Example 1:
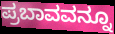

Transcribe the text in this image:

ಪ್ರಬಾವವನ್ನೂ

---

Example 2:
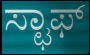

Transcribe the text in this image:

ಸ್ಟಾಫ್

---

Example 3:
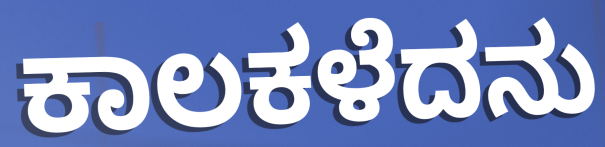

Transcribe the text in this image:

ಕಾಲಕಳೆದನು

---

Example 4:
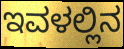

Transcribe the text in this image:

ಇವಳಲ್ಲಿನ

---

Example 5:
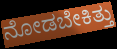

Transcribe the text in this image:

ನೋಡಬೇಕಿತ್ತು